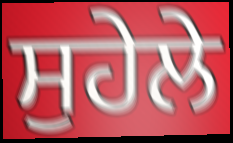
ਸੁਹੇਲੇ